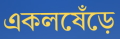
একলষেঁড়ে